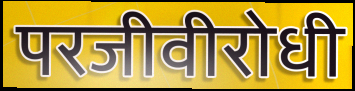
परजीवीरोधी